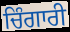
ਚਿੰਗਾਰੀ